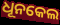
ଧୂନକେଲ